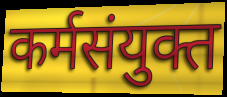
कर्मसंयुक्त